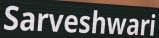
Sarveshwari